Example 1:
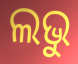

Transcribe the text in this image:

ଲଭୁ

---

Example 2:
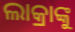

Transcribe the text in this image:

ଲାକ୍ରାଙ୍କୁ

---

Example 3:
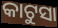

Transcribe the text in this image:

କାଟୁସା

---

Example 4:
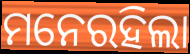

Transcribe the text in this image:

ମନେରହିଲା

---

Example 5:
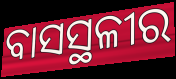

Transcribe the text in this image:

ବାସସ୍ଥଳୀର